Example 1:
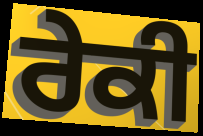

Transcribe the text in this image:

ਰੇਕੀ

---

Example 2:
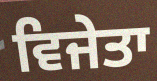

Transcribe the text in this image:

ਵਿਜੇਤਾ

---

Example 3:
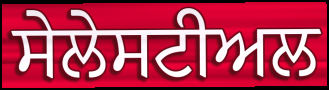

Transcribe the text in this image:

ਸੇਲੇਸਟੀਅਲ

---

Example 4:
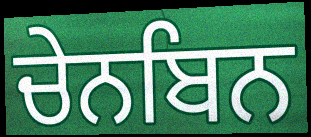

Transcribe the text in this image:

ਚੇਨਬਿਨ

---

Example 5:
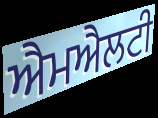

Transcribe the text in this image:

ਐਮਐਲਟੀ